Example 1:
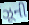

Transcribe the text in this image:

ઝૂની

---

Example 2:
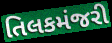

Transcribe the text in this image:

તિલકમંજરી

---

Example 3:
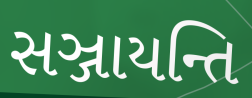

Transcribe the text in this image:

સઞ્જાયન્તિ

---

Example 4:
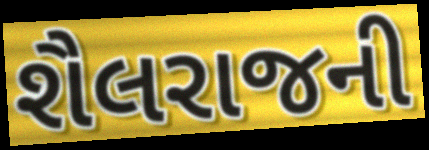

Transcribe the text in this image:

શૈલરાજની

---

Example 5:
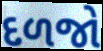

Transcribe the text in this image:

દળજો